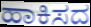
ಹಾಕಿಸದ